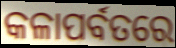
କଳାପର୍ବତରେ